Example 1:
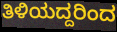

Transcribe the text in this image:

ತಿಳಿಯದ್ದರಿಂದ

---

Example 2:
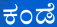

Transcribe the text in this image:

ಕಂಡೆ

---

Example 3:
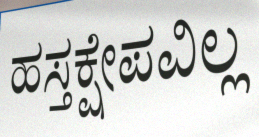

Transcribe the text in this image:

ಹಸ್ತಕ್ಷೇಪವಿಲ್ಲ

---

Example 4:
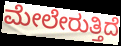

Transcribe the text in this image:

ಮೇಲೇರುತ್ತಿದೆ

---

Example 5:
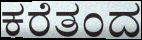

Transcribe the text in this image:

ಕರೆತಂದ